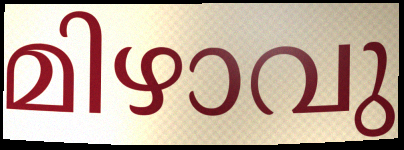
മിഴാവു